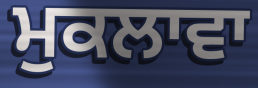
ਮੁਕਲਾਵਾ